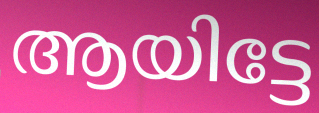
ആയിട്ടേ